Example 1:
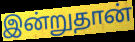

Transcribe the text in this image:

இன்றுதான்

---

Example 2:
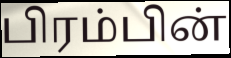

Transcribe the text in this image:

பிரம்பின்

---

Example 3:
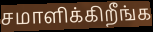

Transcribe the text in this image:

சமாளிக்கிறீங்க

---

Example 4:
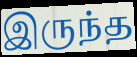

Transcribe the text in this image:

இருந்த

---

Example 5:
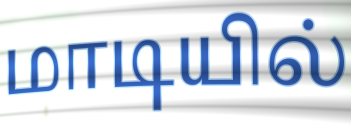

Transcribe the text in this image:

மாடியில்